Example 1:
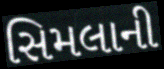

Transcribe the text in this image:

સિમલાની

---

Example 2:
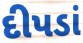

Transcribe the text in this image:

દીપડાં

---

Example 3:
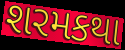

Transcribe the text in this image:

શરમકથા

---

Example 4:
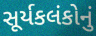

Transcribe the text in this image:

સૂર્યકલંકોનું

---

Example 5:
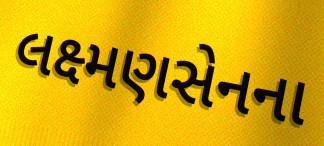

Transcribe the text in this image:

લક્ષ્મણસેનના